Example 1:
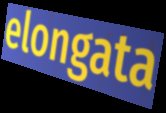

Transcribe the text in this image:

elongata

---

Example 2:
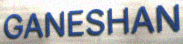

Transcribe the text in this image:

GANESHAN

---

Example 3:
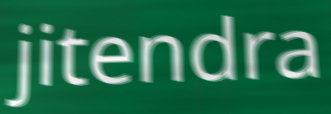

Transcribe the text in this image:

jitendra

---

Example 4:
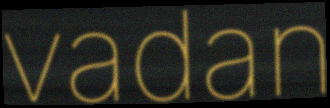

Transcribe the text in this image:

vadan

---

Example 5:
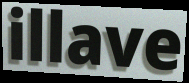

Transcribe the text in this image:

illave